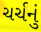
ચર્ચનું